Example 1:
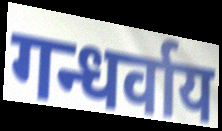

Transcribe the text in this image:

गन्धर्वाय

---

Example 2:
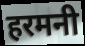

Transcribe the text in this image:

हरमनी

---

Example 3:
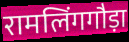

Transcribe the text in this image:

रामलिंगगौड़ा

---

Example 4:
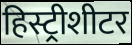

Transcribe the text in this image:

हिस्ट्रीशीटर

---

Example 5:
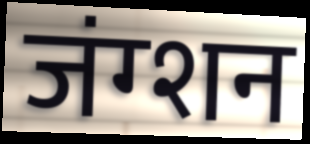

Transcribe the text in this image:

जंग्शन